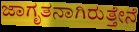
ಜಾಗೃತನಾಗಿರುತ್ತೇನೆ